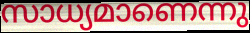
സാധ്യമാണെന്നു